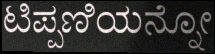
ಟಿಪ್ಪಣಿಯನ್ನೋ